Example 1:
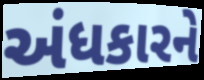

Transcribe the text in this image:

અંધકારને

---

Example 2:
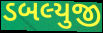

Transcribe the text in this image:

ડબલ્યુજી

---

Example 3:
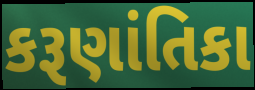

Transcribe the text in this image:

કરૂણાંતિકા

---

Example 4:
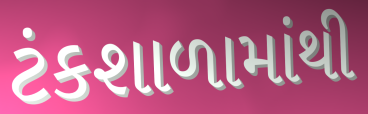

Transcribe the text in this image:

ટંકશાળામાંથી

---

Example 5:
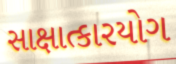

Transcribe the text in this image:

સાક્ષાત્કારયોગ